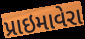
પ્રાઇમાવેરા